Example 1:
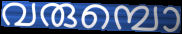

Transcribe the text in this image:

വരുമ്പൊ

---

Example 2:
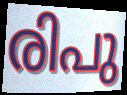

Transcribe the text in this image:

രിപു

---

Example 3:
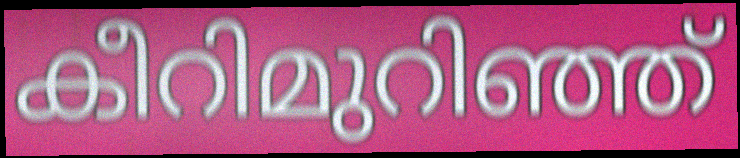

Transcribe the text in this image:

കീറിമുറിഞ്ഞ്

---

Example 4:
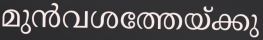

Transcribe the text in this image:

മുൻവശത്തേയ്ക്കു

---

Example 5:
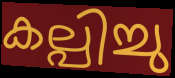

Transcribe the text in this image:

കല്പിച്ചു